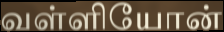
வள்ளியோன்